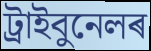
ট্ৰাইবুনেলৰ